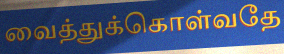
வைத்துக்கொள்வதே